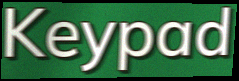
Keypad